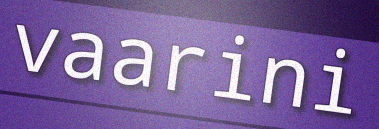
vaarini